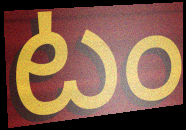
టం